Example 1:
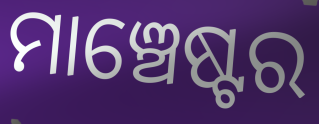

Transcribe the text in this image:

ମାଞ୍ଚେଷ୍ଟର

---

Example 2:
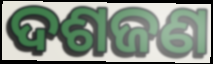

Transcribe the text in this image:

ଦଶଜଣ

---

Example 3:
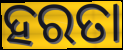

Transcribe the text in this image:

ହରତା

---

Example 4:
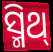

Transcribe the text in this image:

ସ୍ମିଥ୍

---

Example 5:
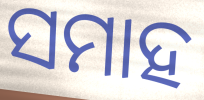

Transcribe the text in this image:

ସମାହ